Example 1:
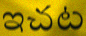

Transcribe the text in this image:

ఇచట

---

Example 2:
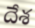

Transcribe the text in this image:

దేశ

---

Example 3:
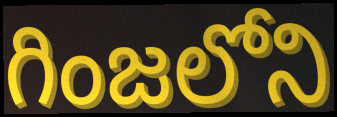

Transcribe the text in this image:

గింజలోని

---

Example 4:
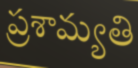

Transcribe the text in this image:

ప్రశామ్యతి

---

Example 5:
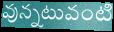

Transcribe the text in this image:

వున్నటువంటి